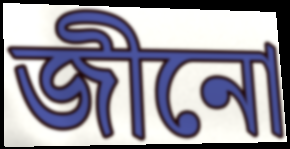
জীনো